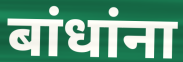
बांधांना